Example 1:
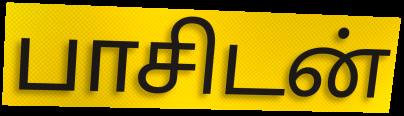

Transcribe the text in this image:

பாசிடன்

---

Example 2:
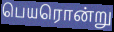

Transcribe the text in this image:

பெயரொன்று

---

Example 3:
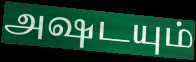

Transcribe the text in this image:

அஷடயும்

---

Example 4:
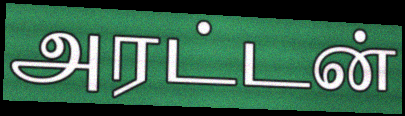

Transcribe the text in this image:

அரட்டன்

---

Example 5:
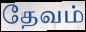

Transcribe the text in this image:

தேவம்